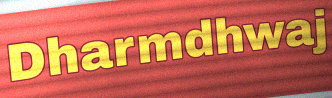
Dharmdhwaj